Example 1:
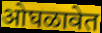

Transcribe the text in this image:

ओघळावेत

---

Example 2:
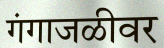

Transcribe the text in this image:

गंगाजळीवर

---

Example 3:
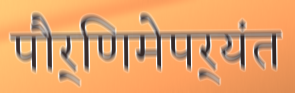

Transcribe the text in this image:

पौर्णिमेपर्यंत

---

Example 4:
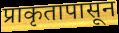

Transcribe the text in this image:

प्राकृतापासून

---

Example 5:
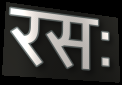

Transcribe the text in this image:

रसः